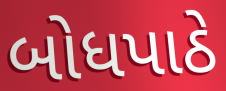
બોધપાઠે